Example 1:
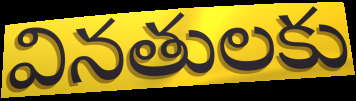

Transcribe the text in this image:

వినతులకు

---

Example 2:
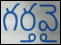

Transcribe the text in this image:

గర్తవై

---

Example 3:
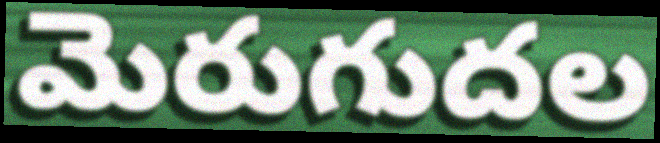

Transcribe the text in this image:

మెరుగుదల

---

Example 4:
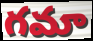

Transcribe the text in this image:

గమా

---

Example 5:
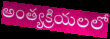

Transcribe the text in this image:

అంత్యక్రియలలో